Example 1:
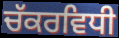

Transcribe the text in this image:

ਚੱਕਰਵਿਧੀ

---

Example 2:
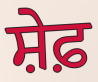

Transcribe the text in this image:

ਸ਼ੇਫ਼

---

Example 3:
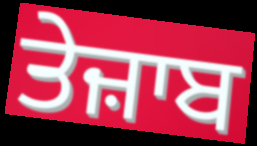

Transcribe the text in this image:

ਤੇਜ਼ਾਬ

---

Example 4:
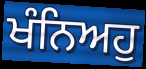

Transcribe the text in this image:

ਖੰਨਿਅਹੁ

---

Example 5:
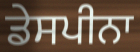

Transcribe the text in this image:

ਡੇਸਪੀਨਾ